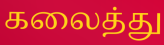
கலைத்து